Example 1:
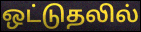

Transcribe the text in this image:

ஒட்டுதலில்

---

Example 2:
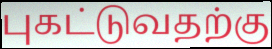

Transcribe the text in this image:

புகட்டுவதற்கு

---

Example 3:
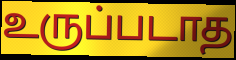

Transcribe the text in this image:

உருப்படாத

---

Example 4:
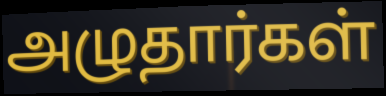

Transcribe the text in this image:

அழுதார்கள்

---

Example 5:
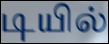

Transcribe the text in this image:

டியில்